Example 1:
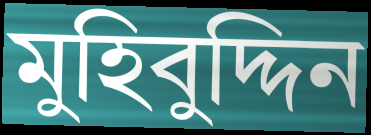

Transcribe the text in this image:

মুহিবুদ্দিন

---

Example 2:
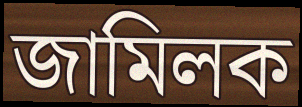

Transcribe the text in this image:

জামিলক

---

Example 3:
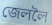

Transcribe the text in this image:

জেললৈ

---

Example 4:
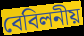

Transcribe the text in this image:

বেবিলনীয়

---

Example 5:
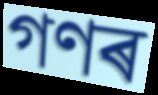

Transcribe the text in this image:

গণৰ